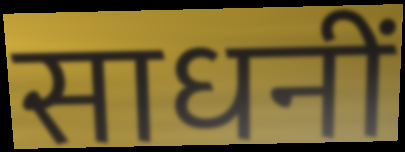
साधनीं